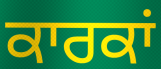
ਕਾਰਕਾਂ